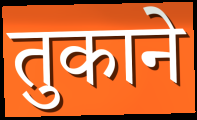
तुकाने